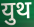
युथ